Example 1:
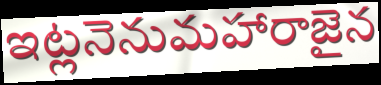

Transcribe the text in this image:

ఇట్లనెనుమహారాజైన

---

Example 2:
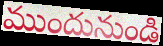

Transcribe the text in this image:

ముందునుండి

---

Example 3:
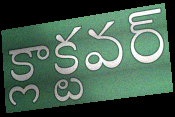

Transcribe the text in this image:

క్లాక్టవర్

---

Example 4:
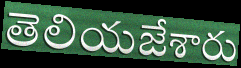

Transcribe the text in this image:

తెలియజేశారు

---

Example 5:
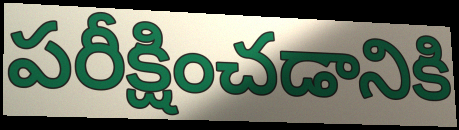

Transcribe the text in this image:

పరీక్షించడానికి